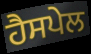
ਹੈਸਪੇਲ